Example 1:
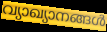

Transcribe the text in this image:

വ്യാഖ്യാനങ്ങൾ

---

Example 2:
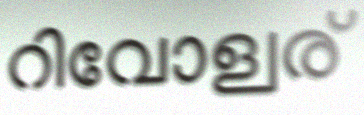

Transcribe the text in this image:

റിവോള്വര്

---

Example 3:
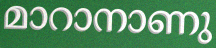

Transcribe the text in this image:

മാറാനാണു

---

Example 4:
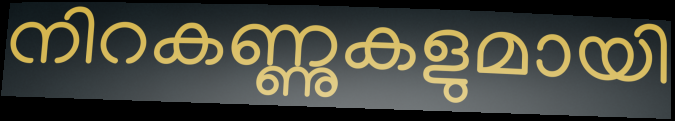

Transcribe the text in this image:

നിറകണ്ണുകളുമായി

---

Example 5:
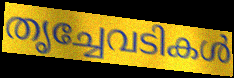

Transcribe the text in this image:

തൃച്ചേവടികൾ